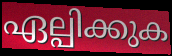
ഏല്പിക്കുക